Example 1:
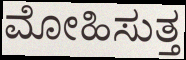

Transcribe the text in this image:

ಮೋಹಿಸುತ್ತ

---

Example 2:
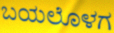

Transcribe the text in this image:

ಬಯಲೊಳಗ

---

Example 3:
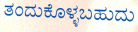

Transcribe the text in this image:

ತಂದುಕೊಳ್ಳಬಹುದು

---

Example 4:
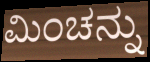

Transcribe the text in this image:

ಮಿಂಚನ್ನು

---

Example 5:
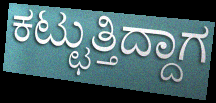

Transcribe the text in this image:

ಕಟ್ಟುತ್ತಿದ್ದಾಗ